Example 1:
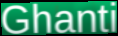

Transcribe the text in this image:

Ghanti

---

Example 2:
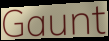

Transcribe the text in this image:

Gaunt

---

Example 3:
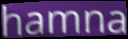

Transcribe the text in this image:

hamna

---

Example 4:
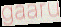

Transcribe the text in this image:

gaaru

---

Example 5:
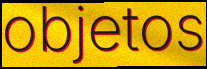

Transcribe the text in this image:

objetos